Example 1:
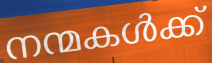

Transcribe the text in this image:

നന്മകൾക്ക്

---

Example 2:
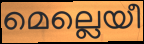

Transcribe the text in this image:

മെല്ലെയീ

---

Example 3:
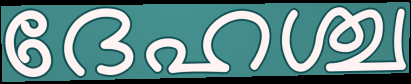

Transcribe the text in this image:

ദേഹശ്ച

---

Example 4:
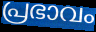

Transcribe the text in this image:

പ്രഭാവം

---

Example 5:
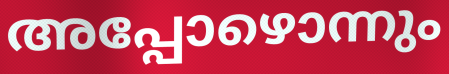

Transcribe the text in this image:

അപ്പോഴൊന്നും